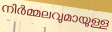
നിർമ്മലവുമായുള്ള